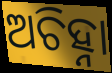
ଅଚିହ୍ନା